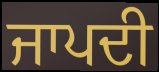
ਜਾਪਦੀ